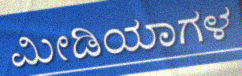
ಮೀಡಿಯಾಗಳ